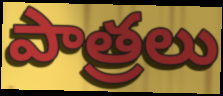
పాత్రలు